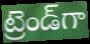
ట్రెండ్‌గా